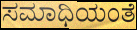
ಸಮಾಧಿಯಂತೆ